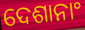
ଦେଶାନାଂ